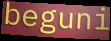
beguni